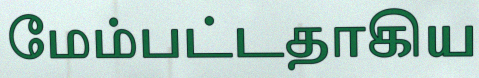
மேம்பட்டதாகிய